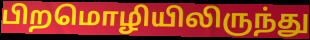
பிறமொழியிலிருந்து